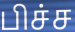
பிச்ச